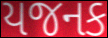
યજનક